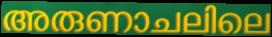
അരുണാചലിലെ